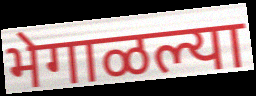
भेगाळल्या